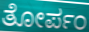
ತೋರ್ಪಂ